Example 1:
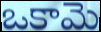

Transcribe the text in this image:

ఒకామె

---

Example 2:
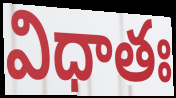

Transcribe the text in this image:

విధాతః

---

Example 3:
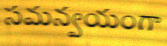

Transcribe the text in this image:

సమన్వయంగా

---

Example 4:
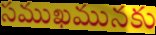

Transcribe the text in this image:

సముఖమునకు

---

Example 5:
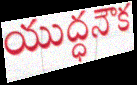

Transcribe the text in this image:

యుద్ధనౌక